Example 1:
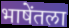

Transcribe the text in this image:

भाषेंतला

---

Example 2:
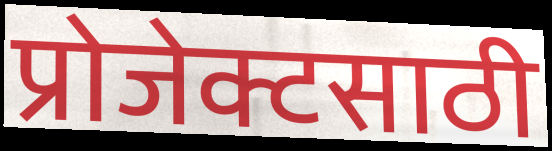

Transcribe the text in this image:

प्रोजेक्टसाठी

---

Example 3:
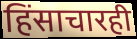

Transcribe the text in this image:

हिंसाचारही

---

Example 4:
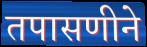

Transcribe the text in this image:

तपासणीने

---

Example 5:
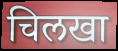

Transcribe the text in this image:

चिलखा